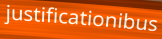
justificationibus